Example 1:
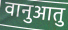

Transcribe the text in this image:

वानुआतु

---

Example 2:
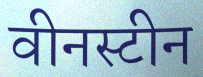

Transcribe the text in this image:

वीनस्टीन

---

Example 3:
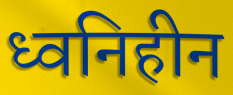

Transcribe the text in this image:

ध्वनिहीन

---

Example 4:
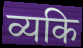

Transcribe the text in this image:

व्यकि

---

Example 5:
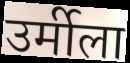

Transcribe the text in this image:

उर्मीला